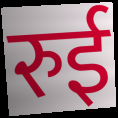
रुई